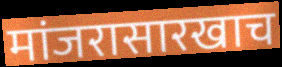
मांजरासारखाच